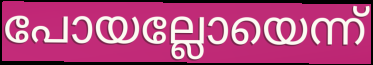
പോയല്ലോയെന്ന്